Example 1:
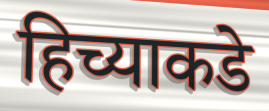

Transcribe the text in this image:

हिच्याकडे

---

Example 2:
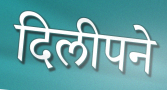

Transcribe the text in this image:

दिलीपने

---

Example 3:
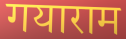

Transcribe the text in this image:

गयाराम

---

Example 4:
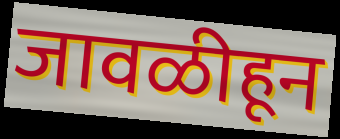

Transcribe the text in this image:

जावळीहून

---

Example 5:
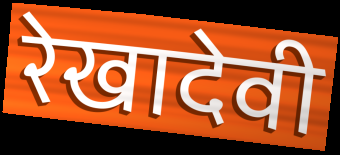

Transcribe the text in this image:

रेखादेवी